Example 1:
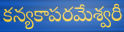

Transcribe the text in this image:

కన్యకాపరమేశ్వరీ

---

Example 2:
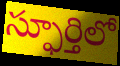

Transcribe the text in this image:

స్ఫూర్తిలో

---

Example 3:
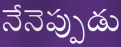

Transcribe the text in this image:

నేనెప్పుడు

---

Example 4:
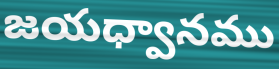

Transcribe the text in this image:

జయధ్వానము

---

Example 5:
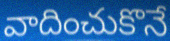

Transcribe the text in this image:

వాదించుకొనే